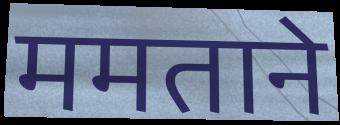
ममताने